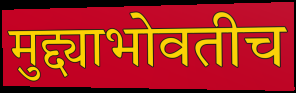
मुद्द्याभोवतीच